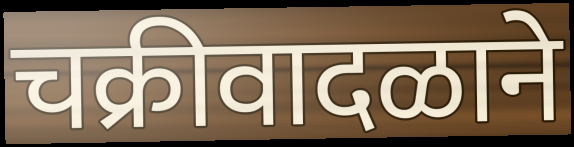
चक्रीवादळाने